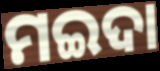
ମଇଦା